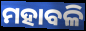
ମହାବଳି